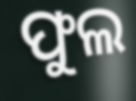
ଫୁଲ